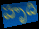
హృది